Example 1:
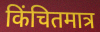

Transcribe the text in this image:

किंचितमात्र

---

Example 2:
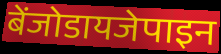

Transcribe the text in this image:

बेंजोडायजेपाइन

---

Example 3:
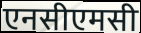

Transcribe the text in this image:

एनसीएमसी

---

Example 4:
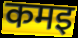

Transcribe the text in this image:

कमइ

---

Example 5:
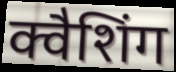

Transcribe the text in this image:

क्वैशिंग